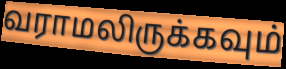
வராமலிருக்கவும்